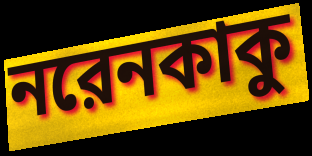
নরেনকাকু